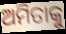
ଅମିତାକୁ